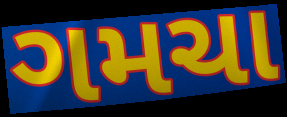
ગમચા